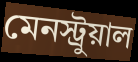
মেনস্ট্রুয়াল